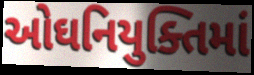
ઓઘનિયુક્તિમાં